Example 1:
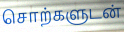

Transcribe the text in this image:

சொற்களுடன்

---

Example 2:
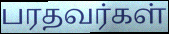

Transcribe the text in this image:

பரதவர்கள்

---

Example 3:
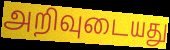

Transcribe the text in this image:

அறிவுடையது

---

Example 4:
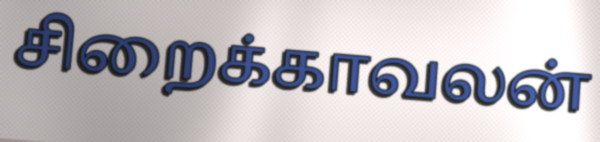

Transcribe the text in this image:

சிறைக்காவலன்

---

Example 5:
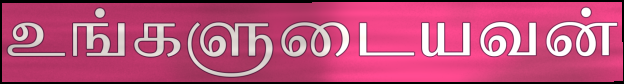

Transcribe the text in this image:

உங்களுடையவன்